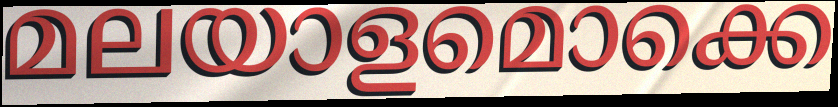
മലയാളമൊക്കെ